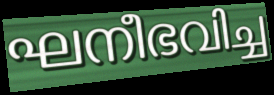
ഘനീഭവിച്ച